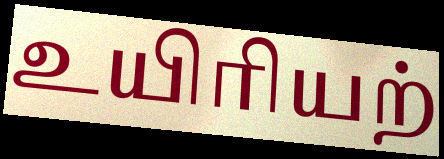
உயிரியற்